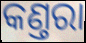
କଣ୍ତରା